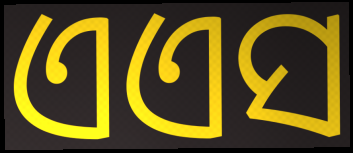
ଏଏସ